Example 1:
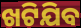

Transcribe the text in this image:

ଖଟିଯିବ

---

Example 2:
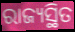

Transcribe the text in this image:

ରାଜ୍ୟସ୍ଥିତ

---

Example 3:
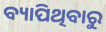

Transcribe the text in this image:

ବ୍ୟାପିଥିବାରୁ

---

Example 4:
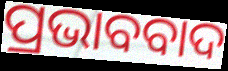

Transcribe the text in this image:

ପ୍ରଭାବବାଦ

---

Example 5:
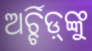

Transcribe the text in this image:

ଅର୍ଚ୍ଚିଡ଼୍‌ଙ୍କୁ